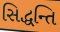
સિદ્ધન્તિ